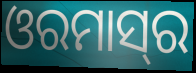
ଓରମାସ୍‌ର